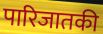
पारिजातकी